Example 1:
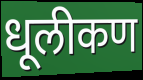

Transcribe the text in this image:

धूलीकण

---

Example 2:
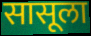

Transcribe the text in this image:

सासूला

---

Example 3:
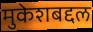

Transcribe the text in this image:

मुकेशबद्दल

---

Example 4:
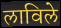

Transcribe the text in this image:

लाविले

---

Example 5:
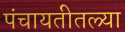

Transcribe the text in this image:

पंचायतीतल्या